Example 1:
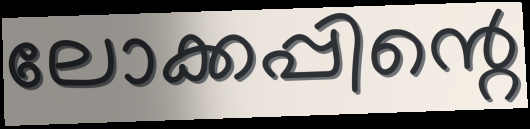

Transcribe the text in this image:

ലോക്കപ്പിന്റെ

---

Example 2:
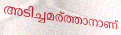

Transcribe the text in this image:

അടിച്ചമര്ത്താനാണ്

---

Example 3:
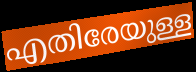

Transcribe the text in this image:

എതിരേയുള്ള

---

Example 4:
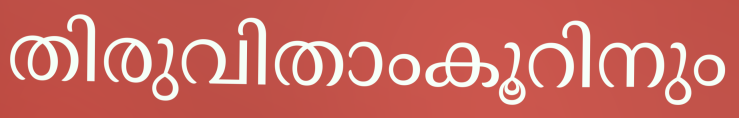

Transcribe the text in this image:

തിരുവിതാംകൂറിനും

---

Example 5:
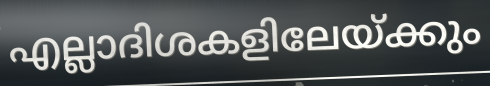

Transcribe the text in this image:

എല്ലാദിശകളിലേയ്ക്കും